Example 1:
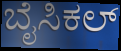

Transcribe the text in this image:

ಬೈಸಿಕಲ್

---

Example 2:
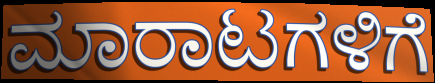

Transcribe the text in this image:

ಮಾರಾಟಗಳಿಗೆ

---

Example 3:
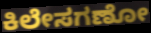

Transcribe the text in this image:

ಕಿಲೇಸಗಣೋ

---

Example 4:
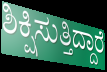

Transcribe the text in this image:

ಶಿಕ್ಷಿಸುತ್ತಿದ್ದಾರೆ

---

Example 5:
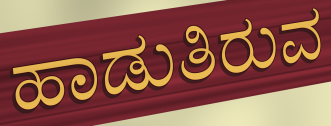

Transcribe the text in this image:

ಹಾಡುತಿರುವ